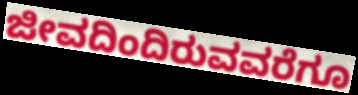
ಜೀವದಿಂದಿರುವವರೆಗೂ